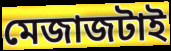
মেজাজটাই